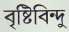
বৃষ্টিবিন্দু